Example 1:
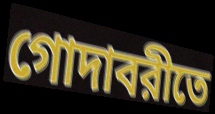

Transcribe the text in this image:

গোদাবরীতে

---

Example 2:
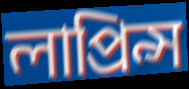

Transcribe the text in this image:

লাপ্রিন্স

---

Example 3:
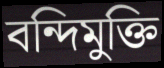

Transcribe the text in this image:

বন্দিমুক্তি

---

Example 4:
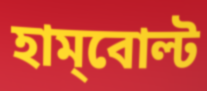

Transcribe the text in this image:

হাম্‌বোল্ট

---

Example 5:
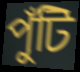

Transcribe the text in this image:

পুঁটি